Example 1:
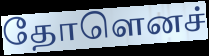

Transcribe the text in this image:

தோளெனச்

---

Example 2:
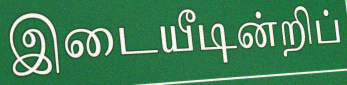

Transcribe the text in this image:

இடையீடின்றிப்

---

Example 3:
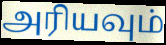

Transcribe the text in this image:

அரியவும்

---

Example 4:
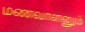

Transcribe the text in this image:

மணவாளனும்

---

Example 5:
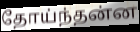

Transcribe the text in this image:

தோய்ந்தன்ன